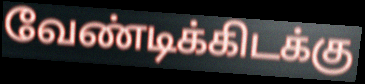
வேண்டிக்கிடக்கு